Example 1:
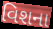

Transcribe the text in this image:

વિશના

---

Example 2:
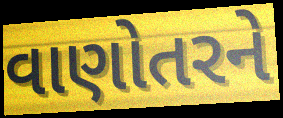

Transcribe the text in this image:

વાણોતરને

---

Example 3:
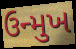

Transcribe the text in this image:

ઉન્મુખ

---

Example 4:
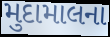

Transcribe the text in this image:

મુદામાલના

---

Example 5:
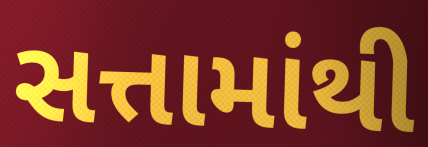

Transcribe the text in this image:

સત્તામાંથી